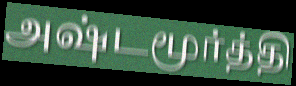
அஷ்டமூர்த்தி